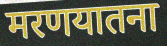
मरणयातना